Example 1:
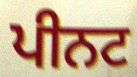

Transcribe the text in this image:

ਪੀਨਟ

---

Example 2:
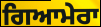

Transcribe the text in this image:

ਗਿਆਮੇਰਾ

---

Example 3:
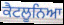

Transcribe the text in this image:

ਕੈਟਲੂਨਿਆ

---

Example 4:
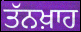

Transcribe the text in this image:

ਤੱਨਖ਼ਾਹ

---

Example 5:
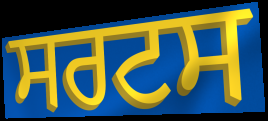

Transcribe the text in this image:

ਸਰਟਸ